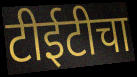
टीईटीचा